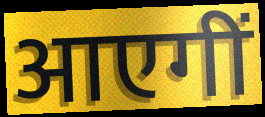
आएगीं